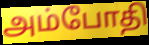
அம்போதி